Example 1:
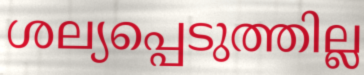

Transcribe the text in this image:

ശല്യപ്പെടുത്തില്ല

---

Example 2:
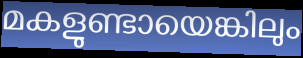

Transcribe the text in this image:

മകളുണ്ടായെങ്കിലും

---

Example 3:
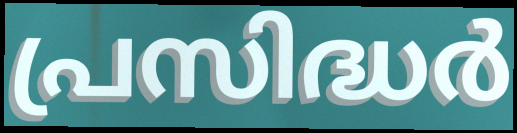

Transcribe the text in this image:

പ്രസിദ്ധർ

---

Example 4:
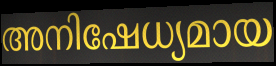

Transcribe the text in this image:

അനിഷേധ്യമായ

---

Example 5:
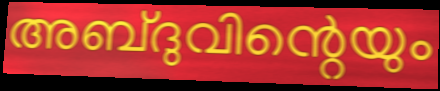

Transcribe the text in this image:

അബ്ദുവിന്റെയും